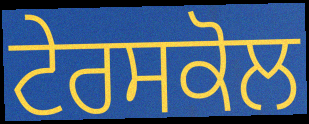
ਟੇਰਸਕੋਲ